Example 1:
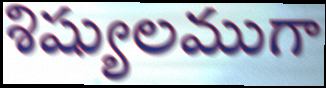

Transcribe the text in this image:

శిష్యులముగా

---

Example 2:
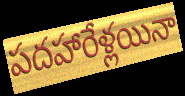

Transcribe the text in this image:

పదహారేళ్లయినా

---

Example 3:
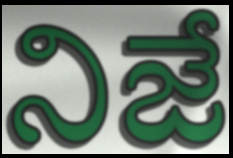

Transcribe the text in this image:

నిజే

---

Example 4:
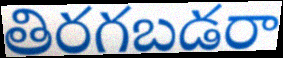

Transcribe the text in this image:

తిరగబడరా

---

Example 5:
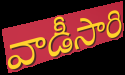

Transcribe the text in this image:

వాడీసారి